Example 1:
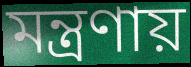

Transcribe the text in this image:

মন্ত্রণায়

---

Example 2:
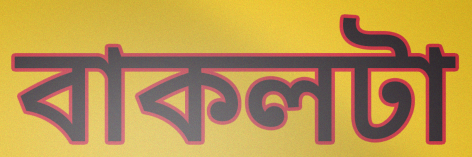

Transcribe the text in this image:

বাকলটা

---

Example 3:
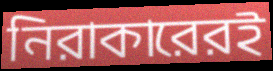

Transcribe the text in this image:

নিরাকারেরই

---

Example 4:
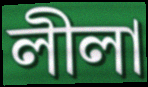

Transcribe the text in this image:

লীলা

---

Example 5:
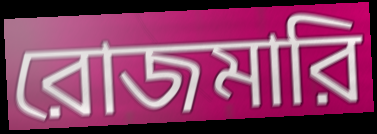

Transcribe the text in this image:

রোজমারি